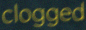
clogged